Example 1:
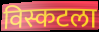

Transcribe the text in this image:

विस्कटला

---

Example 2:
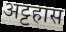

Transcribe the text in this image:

अट्टहास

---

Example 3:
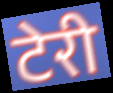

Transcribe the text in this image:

टेरी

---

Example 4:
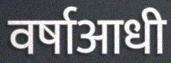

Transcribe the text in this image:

वर्षाआधी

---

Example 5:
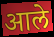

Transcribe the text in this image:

आले